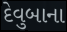
દેવુબાના